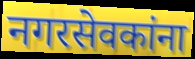
नगरसेवकांना